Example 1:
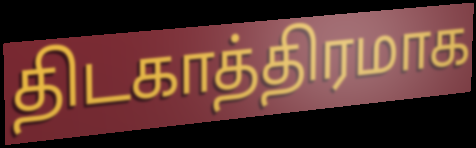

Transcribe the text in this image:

திடகாத்திரமாக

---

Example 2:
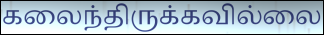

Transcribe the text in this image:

கலைந்திருக்கவில்லை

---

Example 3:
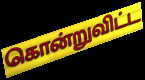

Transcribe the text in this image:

கொன்றுவிட்ட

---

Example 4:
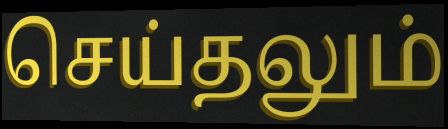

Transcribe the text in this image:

செய்தலும்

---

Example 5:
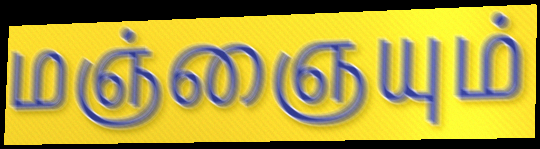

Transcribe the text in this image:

மஞ்ஞையும்